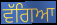
ਵੱਗਿਆ